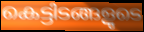
കെട്ടിടങ്ങളുടെ